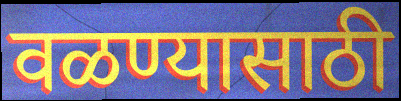
वळण्यासाठी